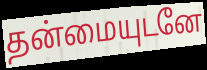
தன்மையுடனே